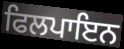
ਫਿਲਪਾਇਨ